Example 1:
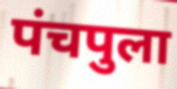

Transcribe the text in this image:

पंचपुला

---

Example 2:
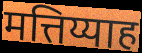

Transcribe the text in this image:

मत्तिय्याह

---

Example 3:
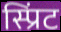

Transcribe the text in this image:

स्प्रिंट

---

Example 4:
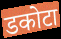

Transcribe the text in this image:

डकोटा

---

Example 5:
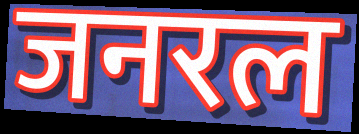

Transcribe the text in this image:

जनरल